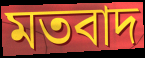
মতবাদ